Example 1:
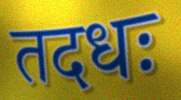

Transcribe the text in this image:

तदधः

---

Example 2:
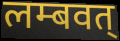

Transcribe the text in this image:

लम्बवत्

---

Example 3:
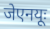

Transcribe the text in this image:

जेएनयूः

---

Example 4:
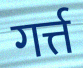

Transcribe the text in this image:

गर्त्त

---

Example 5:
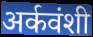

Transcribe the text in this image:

अर्कवंशी